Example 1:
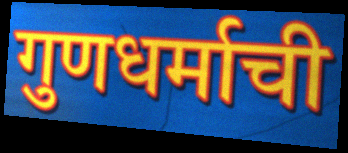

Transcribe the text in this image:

गुणधर्माची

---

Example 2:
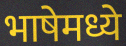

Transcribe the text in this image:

भाषेमध्ये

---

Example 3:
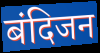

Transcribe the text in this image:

बंदिजन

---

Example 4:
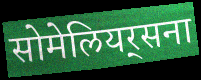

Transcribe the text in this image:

सोमेलियर्सना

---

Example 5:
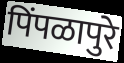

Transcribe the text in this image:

पिंपळापुरे